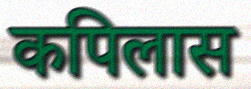
कपिलास